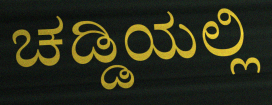
ಚಡ್ಡಿಯಲ್ಲಿ